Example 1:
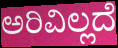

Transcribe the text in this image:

ಅರಿವಿಲ್ಲದೆ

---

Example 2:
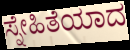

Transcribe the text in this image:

ಸ್ನೇಹಿತೆಯಾದ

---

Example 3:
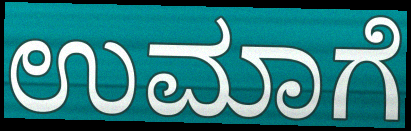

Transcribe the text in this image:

ಉಮಾಗೆ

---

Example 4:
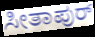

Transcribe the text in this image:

ಸೀತಾಪುರ್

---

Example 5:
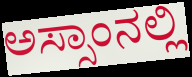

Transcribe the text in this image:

ಅಸ್ಸಾಂನಲ್ಲಿ